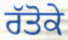
ਰੱਤੋਕੇ